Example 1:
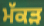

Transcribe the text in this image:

ਮੱਕੜ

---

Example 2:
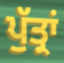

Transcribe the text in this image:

ਪੁੱਤ੍ਰਾਂ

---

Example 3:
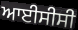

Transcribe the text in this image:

ਆਈਸੀਸੀ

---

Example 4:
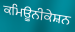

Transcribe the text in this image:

ਕਮਿਊਨੀਕੇਸ਼ਨ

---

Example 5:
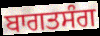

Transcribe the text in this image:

ਬਾਗਤਸੰਗ